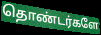
தொண்டர்களே